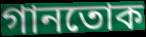
গানতোক